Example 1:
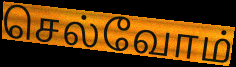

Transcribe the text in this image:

செல்வோம்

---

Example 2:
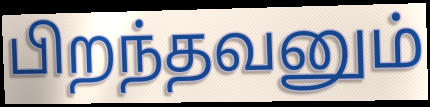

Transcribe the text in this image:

பிறந்தவனும்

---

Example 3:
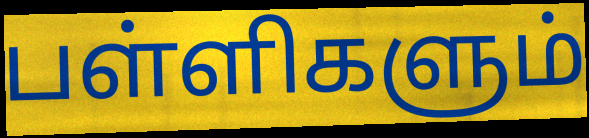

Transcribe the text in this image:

பள்ளிகளும்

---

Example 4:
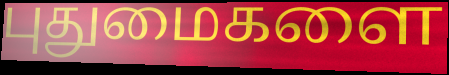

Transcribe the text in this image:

புதுமைகளை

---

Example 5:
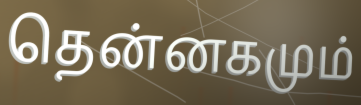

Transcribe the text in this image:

தென்னகமும்